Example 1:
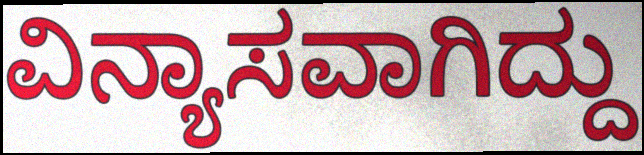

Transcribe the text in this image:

ವಿನ್ಯಾಸವಾಗಿದ್ದು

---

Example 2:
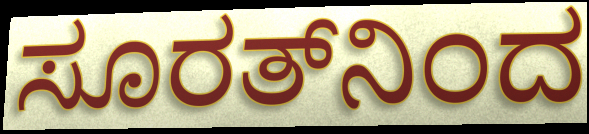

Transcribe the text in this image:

ಸೂರತ್‌ನಿಂದ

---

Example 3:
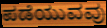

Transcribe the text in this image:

ಪಡೆಯುವವು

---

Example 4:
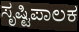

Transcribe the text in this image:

ಸೃಷ್ಟಿಪಾಲಕ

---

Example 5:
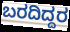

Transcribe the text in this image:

ಬರದಿದ್ದರ